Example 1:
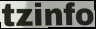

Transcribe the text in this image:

tzinfo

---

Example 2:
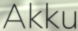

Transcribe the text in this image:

Akku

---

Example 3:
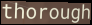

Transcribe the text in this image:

thorough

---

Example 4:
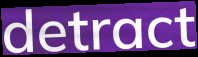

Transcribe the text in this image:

detract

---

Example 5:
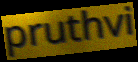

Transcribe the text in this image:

pruthvi